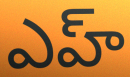
ఎహ్